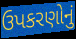
ઉપકરણોનું